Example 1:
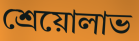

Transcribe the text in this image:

শ্রেয়োলাভ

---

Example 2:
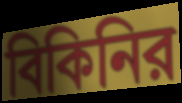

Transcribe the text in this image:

বিকিনির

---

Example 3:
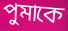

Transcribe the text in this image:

পুমাকে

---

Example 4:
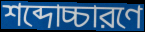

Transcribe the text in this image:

শব্দোচ্চারণে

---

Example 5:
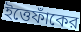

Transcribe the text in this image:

ইত্তেফাঁকের